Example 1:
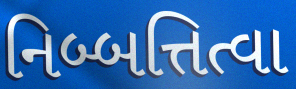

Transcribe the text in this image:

નિબ્બત્તિત્વા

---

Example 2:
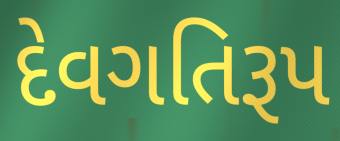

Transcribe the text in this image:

દેવગતિરૂપ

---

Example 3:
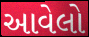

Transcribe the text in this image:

આવેલો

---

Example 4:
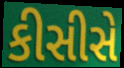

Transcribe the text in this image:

કીસીસે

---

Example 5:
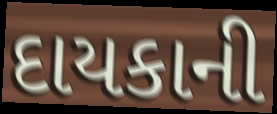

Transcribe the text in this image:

દાયકાની